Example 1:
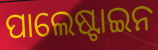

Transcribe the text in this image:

ପାଲେଷ୍ଟାଇନ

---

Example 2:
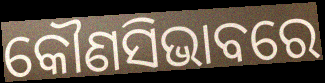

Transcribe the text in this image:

କୌଣସିଭାବରେ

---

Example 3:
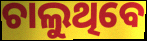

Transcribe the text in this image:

ଚାଲୁଥିବେ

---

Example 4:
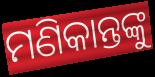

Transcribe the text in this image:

ମଣିକାନ୍ତଙ୍କୁ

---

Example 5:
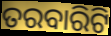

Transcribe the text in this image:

ତରବାରିଟି